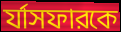
র্যাসফারকে